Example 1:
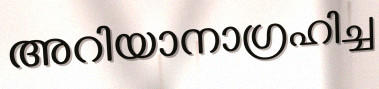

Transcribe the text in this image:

അറിയാനാഗ്രഹിച്ച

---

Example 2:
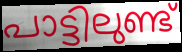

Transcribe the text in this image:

പാട്ടിലുണ്ട്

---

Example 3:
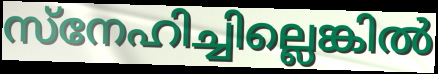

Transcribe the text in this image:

സ്നേഹിച്ചില്ലെങ്കിൽ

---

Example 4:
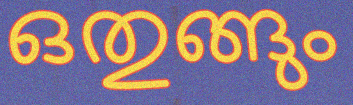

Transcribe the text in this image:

ഒതുങ്ങും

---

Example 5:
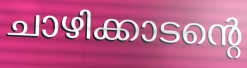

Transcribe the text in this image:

ചാഴിക്കാടന്റെ